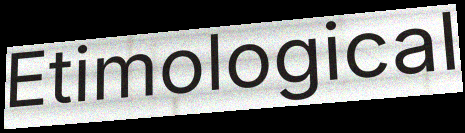
Etimological